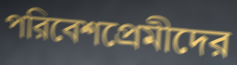
পরিবেশপ্রেমীদের